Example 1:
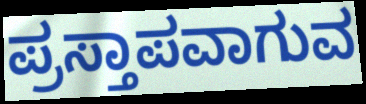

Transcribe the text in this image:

ಪ್ರಸ್ತಾಪವಾಗುವ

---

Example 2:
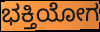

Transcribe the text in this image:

ಭಕ್ತಿಯೋಗ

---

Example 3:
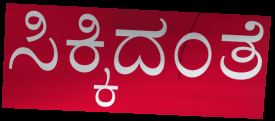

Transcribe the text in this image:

ಸಿಕ್ಕಿದಂತೆ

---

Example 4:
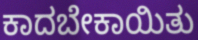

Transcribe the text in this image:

ಕಾದಬೇಕಾಯಿತು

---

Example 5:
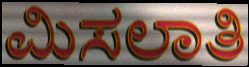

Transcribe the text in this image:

ಮಿಸಲಾತಿ